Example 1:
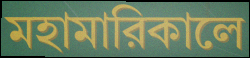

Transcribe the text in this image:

মহামারিকালে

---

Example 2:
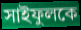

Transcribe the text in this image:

সাইফুলকে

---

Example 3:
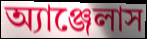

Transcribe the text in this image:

অ্যাঞ্জেলাস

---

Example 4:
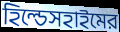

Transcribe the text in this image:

হিল্ডেসহাইমের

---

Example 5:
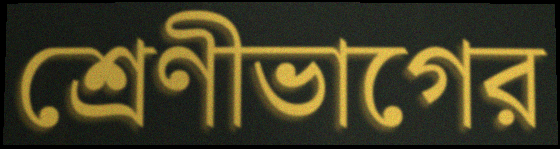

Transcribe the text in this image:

শ্রেণীভাগের